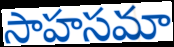
సాహసమా